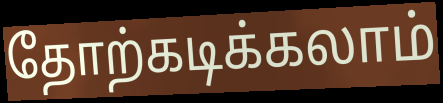
தோற்கடிக்கலாம்